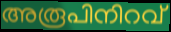
അരൂപിനിറവ്